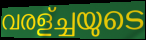
വരള്ച്ചയുടെ